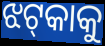
ଝଟ୍‌କାକୁ